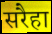
सरैहा